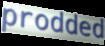
prodded